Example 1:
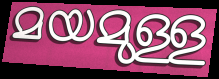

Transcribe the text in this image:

മയമുള്ള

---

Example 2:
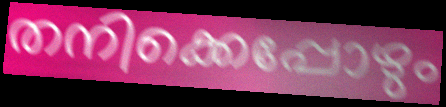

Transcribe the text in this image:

തനിക്കെപ്പോഴും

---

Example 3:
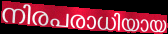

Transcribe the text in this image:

നിരപരാധിയായ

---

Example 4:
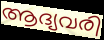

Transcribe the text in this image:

ആദ്യവരി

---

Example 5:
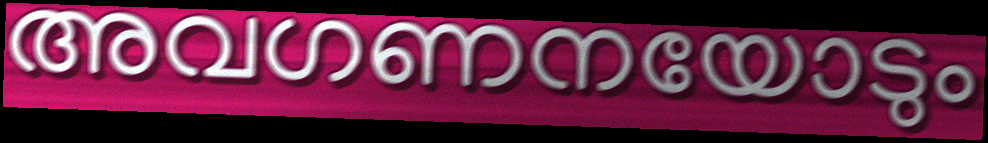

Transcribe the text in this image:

അവഗണനയോടും